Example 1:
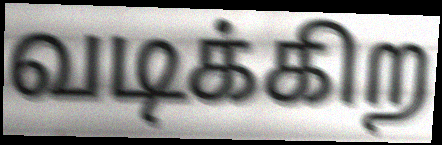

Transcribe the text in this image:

வடிக்கிற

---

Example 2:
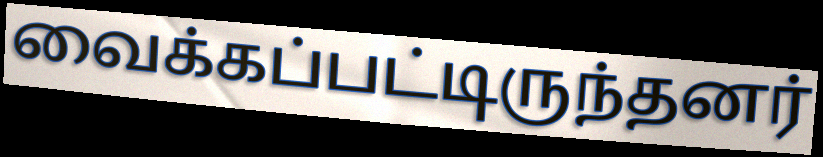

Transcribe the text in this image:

வைக்கப்பட்டிருந்தனர்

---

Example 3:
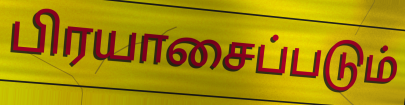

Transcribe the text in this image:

பிரயாசைப்படும்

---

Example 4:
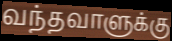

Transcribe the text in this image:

வந்தவாளுக்கு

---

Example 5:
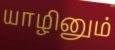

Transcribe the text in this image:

யாழினும்